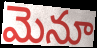
మెనూ